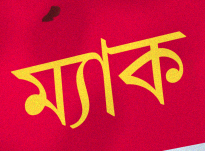
ম্যাক